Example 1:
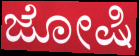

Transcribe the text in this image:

ಜೋಷಿ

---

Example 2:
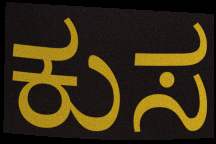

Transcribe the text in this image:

ಕುಸ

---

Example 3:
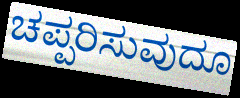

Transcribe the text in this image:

ಚಪ್ಪರಿಸುವುದೂ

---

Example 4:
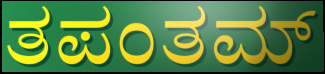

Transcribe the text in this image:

ತಪಂತಮ್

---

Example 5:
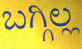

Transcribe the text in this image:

ಬಗ್ಗಿಲ್ಲ